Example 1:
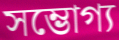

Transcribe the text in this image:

সম্ভোগ্য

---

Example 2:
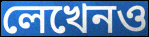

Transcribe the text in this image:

লেখেনও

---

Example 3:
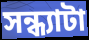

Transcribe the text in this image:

সন্ধ্যাটা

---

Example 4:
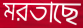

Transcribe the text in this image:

মরতাছে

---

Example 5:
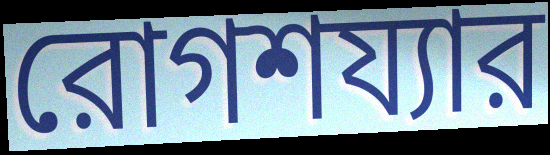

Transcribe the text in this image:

রোগশয্যার